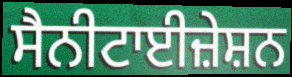
ਸੈਨੀਟਾਈਜ਼ੇਸ਼ਨ